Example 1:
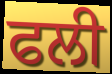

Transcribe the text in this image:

ਫਲੀ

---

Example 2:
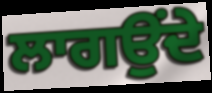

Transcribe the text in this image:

ਲਾਗਉਂਦੇ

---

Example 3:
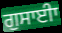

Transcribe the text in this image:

ਗੁਸਾਈਾ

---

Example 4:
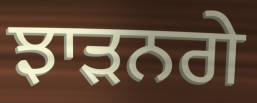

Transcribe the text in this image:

ਝਾੜਨਗੇ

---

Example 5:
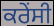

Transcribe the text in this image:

ਕਰੇੰਸੀ